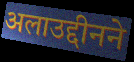
अलाउद्दीनने